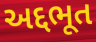
અદ્દભૂત